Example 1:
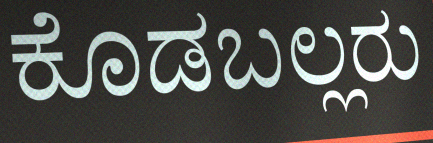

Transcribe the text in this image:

ಕೊಡಬಲ್ಲರು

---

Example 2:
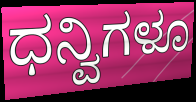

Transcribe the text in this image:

ಧನ್ವಿಗಳೂ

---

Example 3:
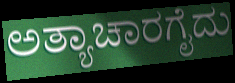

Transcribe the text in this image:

ಅತ್ಯಾಚಾರಗೈದು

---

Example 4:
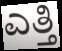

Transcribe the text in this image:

ಎತ್ತಿ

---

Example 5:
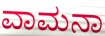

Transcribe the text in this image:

ವಾಮನಾ